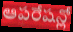
ఆపరేషన్లో